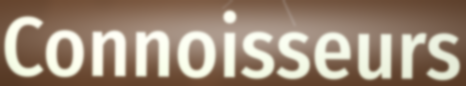
Connoisseurs